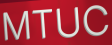
MTUC